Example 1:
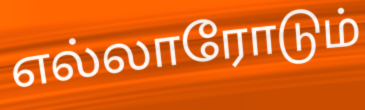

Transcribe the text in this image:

எல்லாரோடும்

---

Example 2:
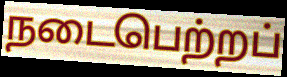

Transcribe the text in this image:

நடைபெற்றப்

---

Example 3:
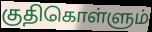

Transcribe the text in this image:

குதிகொள்ளும்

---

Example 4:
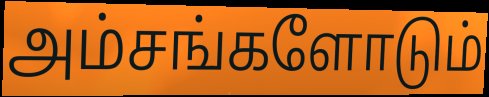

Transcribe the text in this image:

அம்சங்களோடும்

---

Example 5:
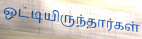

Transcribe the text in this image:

ஒட்டியிருந்தார்கள்